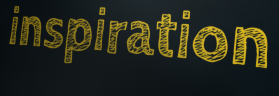
inspiration